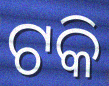
ଟକି